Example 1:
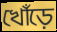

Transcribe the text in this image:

খোঁড়ে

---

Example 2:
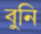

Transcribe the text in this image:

বুনি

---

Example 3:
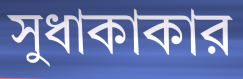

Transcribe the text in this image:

সুধাকাকার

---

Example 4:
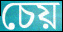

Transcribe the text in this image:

চেয়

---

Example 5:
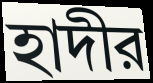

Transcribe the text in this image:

হাদীর